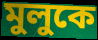
মুলুকে